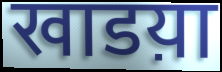
खाडय़ा